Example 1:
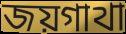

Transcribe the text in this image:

জয়গাথা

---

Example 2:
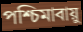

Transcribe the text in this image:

পশ্চিমাবায়ু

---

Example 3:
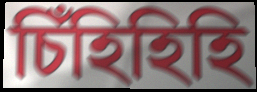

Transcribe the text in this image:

চিঁহিহিহি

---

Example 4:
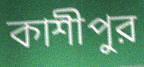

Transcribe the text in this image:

কাশীপুর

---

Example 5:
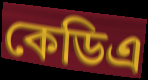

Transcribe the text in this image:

কেডিএ